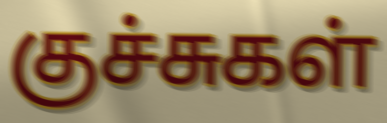
குச்சுகள்